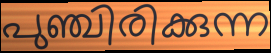
പുഞ്ചിരിക്കുന്ന